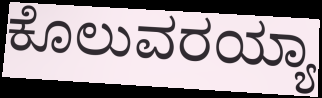
ಕೊಲುವರಯ್ಯಾ